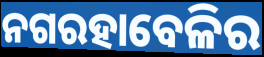
ନଗରହାବେଳିର